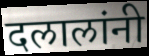
दलालांनी